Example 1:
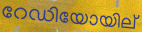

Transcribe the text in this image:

റേഡിയോയില്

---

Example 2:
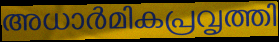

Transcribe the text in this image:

അധാർമികപ്രവൃത്തി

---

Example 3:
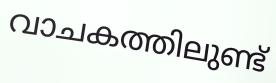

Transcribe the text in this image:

വാചകത്തിലുണ്ട്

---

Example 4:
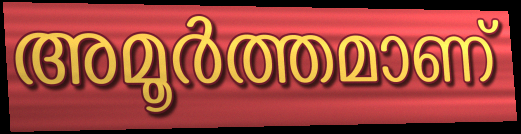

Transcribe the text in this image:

അമൂർത്തമാണ്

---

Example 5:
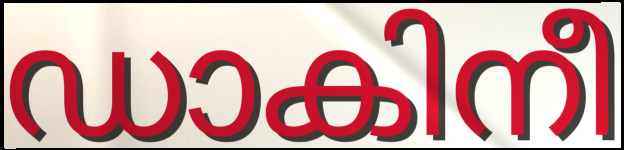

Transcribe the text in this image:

ഡാകിനീ